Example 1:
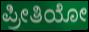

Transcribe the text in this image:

ಪ್ರೀತಿಯೋ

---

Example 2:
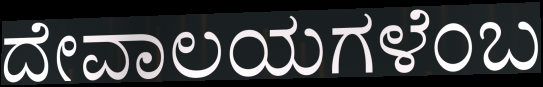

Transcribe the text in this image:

ದೇವಾಲಯಗಳೆಂಬ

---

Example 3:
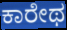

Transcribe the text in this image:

ಕಾರೇಥ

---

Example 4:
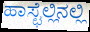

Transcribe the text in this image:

ಹಾಸ್ಟೆಲ್ಲಿನಲ್ಲಿ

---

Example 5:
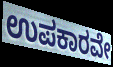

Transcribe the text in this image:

ಉಪಕಾರವೇ